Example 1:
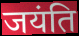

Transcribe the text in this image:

जयंति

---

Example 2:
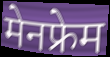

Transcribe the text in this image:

मेनफ्रेम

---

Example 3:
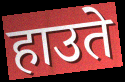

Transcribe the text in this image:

हाउते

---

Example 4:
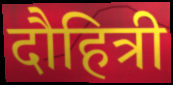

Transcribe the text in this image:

दौहित्री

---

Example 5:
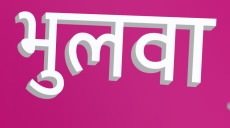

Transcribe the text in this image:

भुलवा